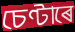
চেণ্টাৰে